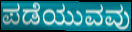
ಪಡೆಯುವವು